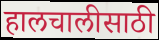
हालचालीसाठी